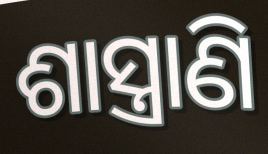
ଶାସ୍ତ୍ରାଣି